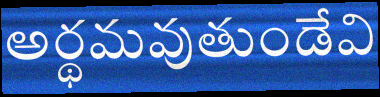
అర్థమవుతుండేవి